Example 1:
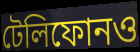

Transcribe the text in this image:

টেলিফোনও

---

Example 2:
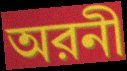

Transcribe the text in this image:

অরনী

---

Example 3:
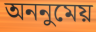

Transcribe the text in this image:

অননুমেয়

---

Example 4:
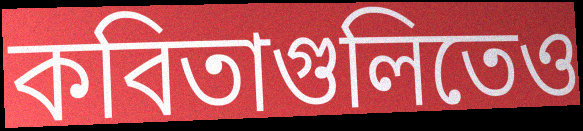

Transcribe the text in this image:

কবিতাগুলিতেও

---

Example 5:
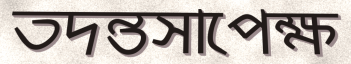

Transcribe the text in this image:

তদন্তসাপেক্ষ